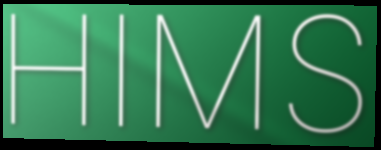
HIMS